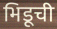
भिडूची